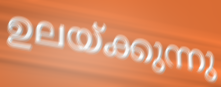
ഉലയ്ക്കുന്നു